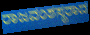
ರಾಜವಂಶಸ್ಥರಾದ